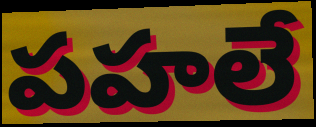
పహలే